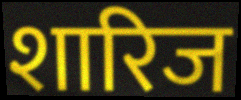
शारिज